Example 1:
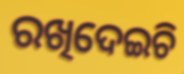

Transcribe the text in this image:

ରଖିଦେଇଚି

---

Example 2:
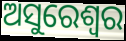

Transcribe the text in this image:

ଅସୁରେଶ୍ଵର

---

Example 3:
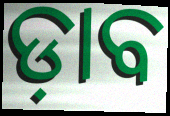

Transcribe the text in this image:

ଡ଼ାବ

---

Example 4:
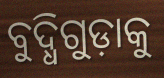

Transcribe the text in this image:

ବୁଦ୍ଧିଗୁଡ଼ାକୁ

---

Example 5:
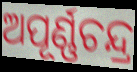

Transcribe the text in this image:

ଅପୂର୍ଣ୍ଣଚନ୍ଦ୍ର